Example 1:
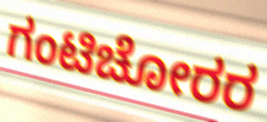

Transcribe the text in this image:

ಗಂಟಿಚೋರರ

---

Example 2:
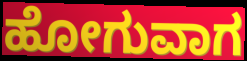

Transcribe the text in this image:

ಹೋಗುವಾಗ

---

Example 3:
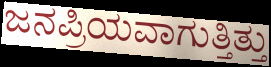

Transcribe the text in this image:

ಜನಪ್ರಿಯವಾಗುತ್ತಿತ್ತು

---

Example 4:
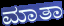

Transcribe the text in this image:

ಮಾತಾ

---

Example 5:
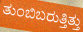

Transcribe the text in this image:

ತುಂಬಿಬರುತ್ತಿತ್ತು